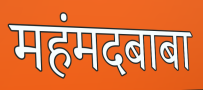
महंमदबाबा